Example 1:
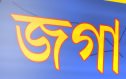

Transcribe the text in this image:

জগা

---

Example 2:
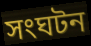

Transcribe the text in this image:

সংঘটন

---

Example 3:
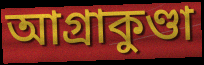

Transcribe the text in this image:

আগ্রাকুণ্ডা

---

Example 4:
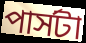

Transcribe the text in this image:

পার্সটা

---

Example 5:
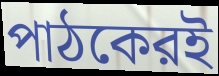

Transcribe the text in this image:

পাঠকেরই